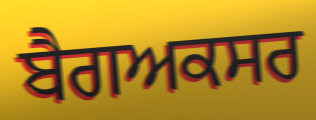
ਬੈਗਅਕਸਰ